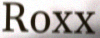
Roxx